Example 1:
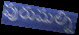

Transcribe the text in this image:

పురుషుల్ని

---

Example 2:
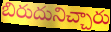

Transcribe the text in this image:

బిరుదునిచ్చారు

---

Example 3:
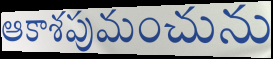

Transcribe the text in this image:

ఆకాశపుమంచును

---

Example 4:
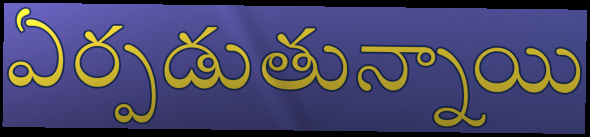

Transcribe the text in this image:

ఏర్పడుతున్నాయి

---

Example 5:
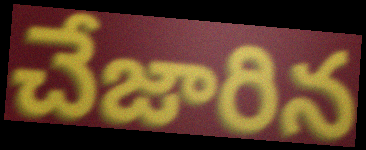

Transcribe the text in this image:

చేజారిన